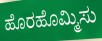
ಹೊರಹೊಮ್ಮಿಸು